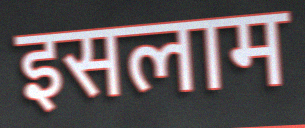
इसलाम